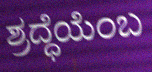
ಶ್ರದ್ಧೆಯೆಂಬ